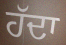
ਹੱਦਾ